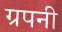
ग्रपनी